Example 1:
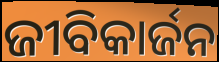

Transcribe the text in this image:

ଜୀବିକାର୍ଜନ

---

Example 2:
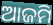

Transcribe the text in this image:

ଆଜମି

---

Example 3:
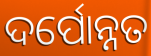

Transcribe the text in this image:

ଦର୍ପୋନ୍ନତ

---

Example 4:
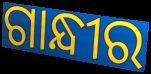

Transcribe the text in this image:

ଗାନ୍ଧୀର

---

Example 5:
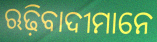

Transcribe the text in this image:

ଋଢ଼ିବାଦୀମାନେ